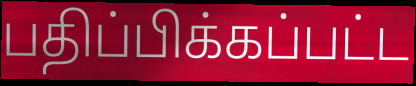
பதிப்பிக்கப்பட்ட